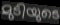
മുടിയുടെ